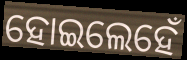
ହୋଇଲେହେଁ